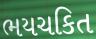
ભયચકિત